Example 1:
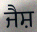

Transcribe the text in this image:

ਜੈਸ਼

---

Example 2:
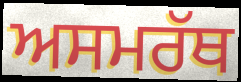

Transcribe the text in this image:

ਅਸਮਰੱਥ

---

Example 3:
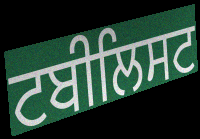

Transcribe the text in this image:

ਟਬੀਲਿਸਟ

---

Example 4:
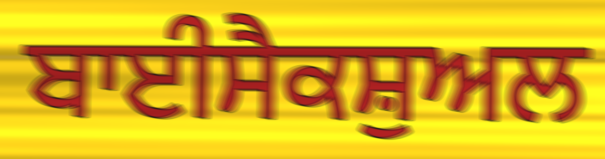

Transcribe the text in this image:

ਬਾਈਸੈਕਸ਼ੁਅਲ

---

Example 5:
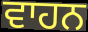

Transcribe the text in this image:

ਵਾਹਨ